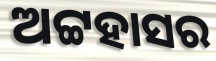
ଅଟ୍ଟହାସର